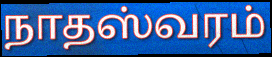
நாதஸ்வரம்